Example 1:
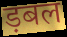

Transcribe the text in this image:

ड़बल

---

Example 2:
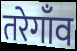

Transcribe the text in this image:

तरेगाँव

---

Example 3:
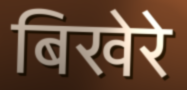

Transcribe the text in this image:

बिखेरे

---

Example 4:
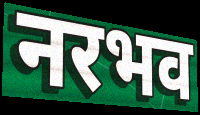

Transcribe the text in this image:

नरभव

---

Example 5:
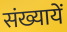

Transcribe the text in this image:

संख्यायें